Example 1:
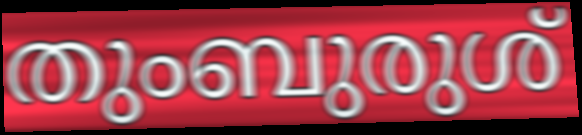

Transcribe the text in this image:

തുംബുരുശ്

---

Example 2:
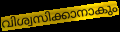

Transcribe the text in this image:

വിശ്വസിക്കാനാകും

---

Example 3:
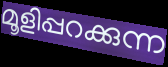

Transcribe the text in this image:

മൂളിപ്പറക്കുന്ന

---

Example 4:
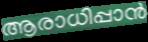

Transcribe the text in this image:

ആരാധിപ്പാൻ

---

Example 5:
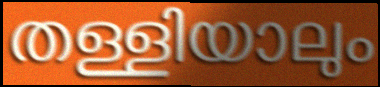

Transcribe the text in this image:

തള്ളിയാലും